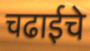
चढाईचे